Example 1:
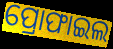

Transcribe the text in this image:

ପ୍ରୋଫାଇଲ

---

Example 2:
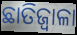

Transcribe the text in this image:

ଛାତିଜ୍ୱାଳା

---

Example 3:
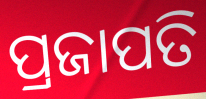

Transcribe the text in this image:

ପ୍ରଜାପତି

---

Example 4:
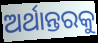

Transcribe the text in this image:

ଅର୍ଥାନ୍ତରକୁ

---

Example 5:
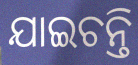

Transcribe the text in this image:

ଯାଇଚନ୍ତି